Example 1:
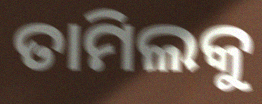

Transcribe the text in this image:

ତାମିଲକୁ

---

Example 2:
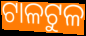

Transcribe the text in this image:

ଟାଳଟୁଳ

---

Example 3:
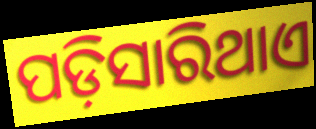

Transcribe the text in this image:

ପଡ଼ିସାରିଥାଏ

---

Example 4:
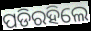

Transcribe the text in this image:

ପଡିରହିଲେ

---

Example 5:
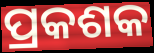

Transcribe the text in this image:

ପ୍ରକଶକ